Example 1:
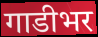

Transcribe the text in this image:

गाडीभर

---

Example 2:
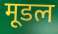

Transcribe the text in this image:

मूडल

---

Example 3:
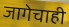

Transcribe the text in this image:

जागेचाही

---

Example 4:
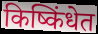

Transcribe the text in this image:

किष्किंधेत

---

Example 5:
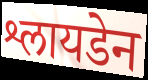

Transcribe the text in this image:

श्लायडेन